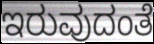
ಇರುವುದಂತೆ